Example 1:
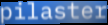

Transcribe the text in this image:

pilaster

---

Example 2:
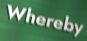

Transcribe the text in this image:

Whereby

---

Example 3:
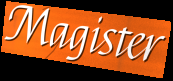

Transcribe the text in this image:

Magister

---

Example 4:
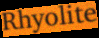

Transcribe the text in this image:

Rhyolite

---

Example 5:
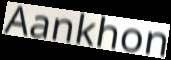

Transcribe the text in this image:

Aankhon